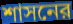
শাসনের